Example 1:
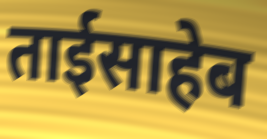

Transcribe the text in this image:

ताईसाहेब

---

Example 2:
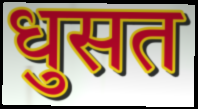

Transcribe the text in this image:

धुसत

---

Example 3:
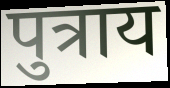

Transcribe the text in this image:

पुत्राय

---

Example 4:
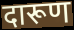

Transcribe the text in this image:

दारूण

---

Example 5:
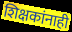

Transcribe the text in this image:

शिक्षकांनाही